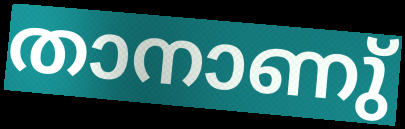
താനാണു്